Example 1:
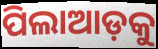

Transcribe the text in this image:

ପିଲାଆଡ଼କୁ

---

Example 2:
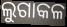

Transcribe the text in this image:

ଲୁଗାକଳ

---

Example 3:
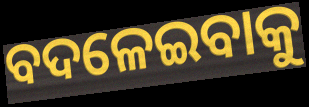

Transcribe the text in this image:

ବଦଳେଇବାକୁ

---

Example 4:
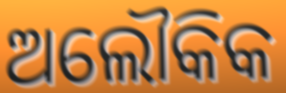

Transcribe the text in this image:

ଅଲୌକିକ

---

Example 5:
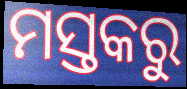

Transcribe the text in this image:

ମସ୍ତକରୁ